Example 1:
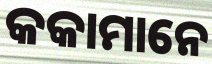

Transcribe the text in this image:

କକାମାନେ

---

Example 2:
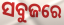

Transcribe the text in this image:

ସବୁଜରେ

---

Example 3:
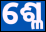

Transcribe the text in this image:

ଶ୍ଳେ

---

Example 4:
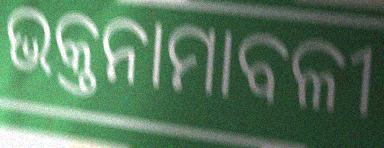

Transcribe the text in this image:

ଭକ୍ତନାମାବଳୀ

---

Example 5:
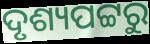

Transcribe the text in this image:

ଦୃଶ୍ୟପଟ୍ଟରୁ